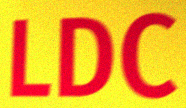
LDC